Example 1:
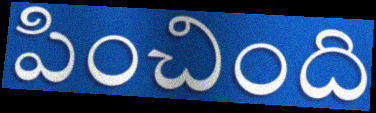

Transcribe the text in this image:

పించింది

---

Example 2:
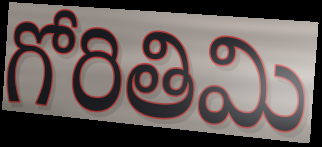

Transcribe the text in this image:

గోరితిమి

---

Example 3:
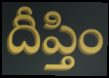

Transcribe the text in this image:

దీప్తిం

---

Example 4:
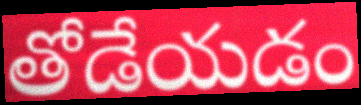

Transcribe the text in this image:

తోడేయడం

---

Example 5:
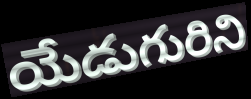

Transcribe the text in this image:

యేడుగురిని